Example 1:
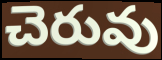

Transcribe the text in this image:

చెరువు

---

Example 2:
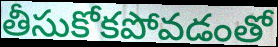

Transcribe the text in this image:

తీసుకోకపోవడంతో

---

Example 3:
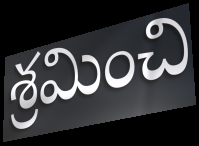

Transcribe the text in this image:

శ్రమించి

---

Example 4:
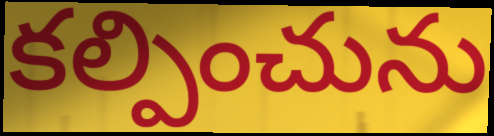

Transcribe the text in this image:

కల్పించును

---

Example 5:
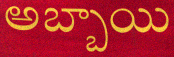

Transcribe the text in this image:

అబ్బాయి